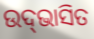
ଉଦ୍‌ଭାସିତ